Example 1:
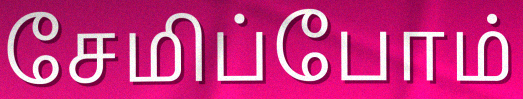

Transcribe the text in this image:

சேமிப்போம்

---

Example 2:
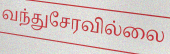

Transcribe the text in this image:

வந்துசேரவில்லை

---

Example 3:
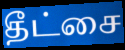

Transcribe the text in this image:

தீட்சை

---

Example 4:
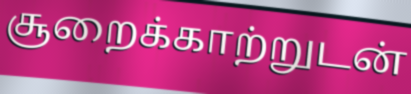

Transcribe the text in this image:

சூறைக்காற்றுடன்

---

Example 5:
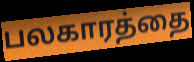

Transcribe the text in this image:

பலகாரத்தை